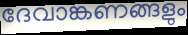
ദേവാങ്കണങ്ങളും